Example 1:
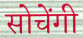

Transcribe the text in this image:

सोचेंगी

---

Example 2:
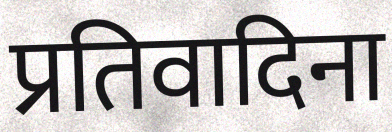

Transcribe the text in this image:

प्रतिवादिना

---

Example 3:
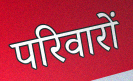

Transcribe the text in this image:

परिवारों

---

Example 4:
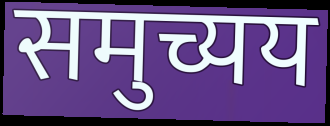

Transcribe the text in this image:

समुच्यय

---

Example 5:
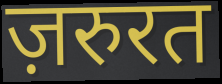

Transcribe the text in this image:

ज़रुरत